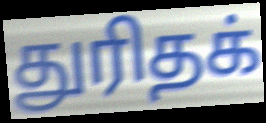
துரிதக்